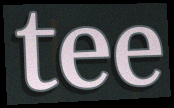
tee